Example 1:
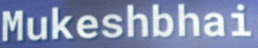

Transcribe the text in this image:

Mukeshbhai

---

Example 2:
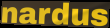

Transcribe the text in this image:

nardus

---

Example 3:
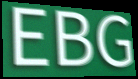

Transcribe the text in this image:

EBG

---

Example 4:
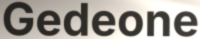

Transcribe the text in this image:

Gedeone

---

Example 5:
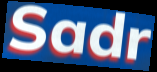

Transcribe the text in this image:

Sadr